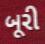
બૂરી